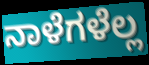
ನಾಳೆಗಳೆಲ್ಲ